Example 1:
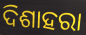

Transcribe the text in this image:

ଦିଶାହରା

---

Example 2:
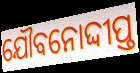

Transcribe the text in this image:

ଯୌବନୋଦ୍ଦୀପ୍ତ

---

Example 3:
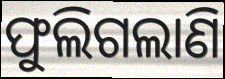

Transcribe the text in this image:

ଫୁଲିଗଲାଣି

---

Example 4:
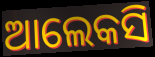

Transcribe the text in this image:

ଆଲେକସି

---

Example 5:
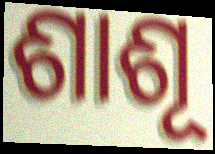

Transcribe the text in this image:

ଶାଶୂ